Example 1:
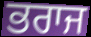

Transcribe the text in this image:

ਭਰਾਜ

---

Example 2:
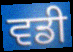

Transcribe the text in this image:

ਵਡੀ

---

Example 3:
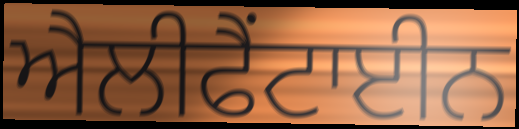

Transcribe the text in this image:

ਐਲੀਫੈਂਟਾਈਨ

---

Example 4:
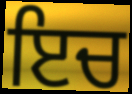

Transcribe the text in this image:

ਇਚ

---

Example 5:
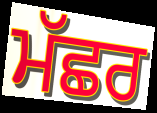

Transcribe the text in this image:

ਮੱਛਰ